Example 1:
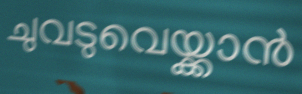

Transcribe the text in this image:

ചുവടുവെയ്ക്കാൻ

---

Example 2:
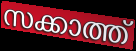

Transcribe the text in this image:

സക്കാത്ത്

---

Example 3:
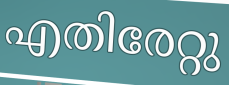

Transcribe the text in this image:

എതിരേറ്റു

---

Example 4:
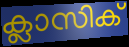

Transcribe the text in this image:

ക്ലാസിക്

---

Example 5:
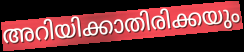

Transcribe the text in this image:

അറിയിക്കാതിരിക്കയും